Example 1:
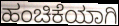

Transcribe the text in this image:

ಹಂಚಿಕೆಯಾಗಿ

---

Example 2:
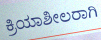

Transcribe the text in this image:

ಕ್ರಿಯಾಶೀಲರಾಗಿ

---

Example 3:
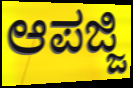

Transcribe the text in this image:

ಆಪಜ್ಜಿ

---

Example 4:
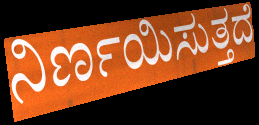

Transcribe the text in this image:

ನಿರ್ಣಯಿಸುತ್ತದೆ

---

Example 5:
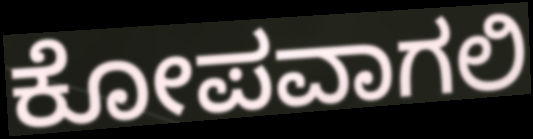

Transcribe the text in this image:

ಕೋಪವಾಗಲಿ